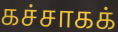
கச்சாகக்